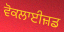
ਵੋਕਲਾਈਜ਼ਡ